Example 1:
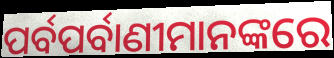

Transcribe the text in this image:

ପର୍ବପର୍ବାଣୀମାନଙ୍କରେ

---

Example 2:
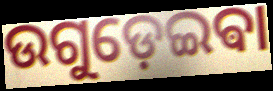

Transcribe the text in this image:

ଉଗୁଡ଼େଇଵା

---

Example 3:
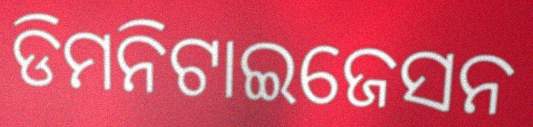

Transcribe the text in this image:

ଡିମନିଟାଇଜେସନ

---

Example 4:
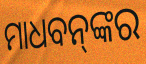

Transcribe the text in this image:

ମାଧବନ୍‌ଙ୍କର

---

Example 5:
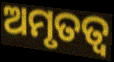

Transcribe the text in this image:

ଅମୃତତ୍ବ